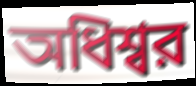
অধিশ্বর